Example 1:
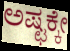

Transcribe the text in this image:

ಅಷ್ಟಕ್ಕೇ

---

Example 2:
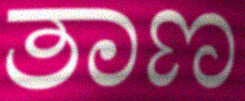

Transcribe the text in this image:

ತಾಣ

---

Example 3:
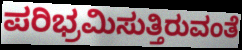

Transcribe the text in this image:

ಪರಿಭ್ರಮಿಸುತ್ತಿರುವಂತೆ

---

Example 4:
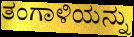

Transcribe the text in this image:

ತಂಗಾಳಿಯನ್ನು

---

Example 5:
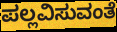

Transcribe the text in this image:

ಪಲ್ಲವಿಸುವಂತೆ